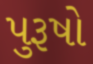
પુરૂષો